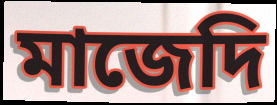
মাজেদি